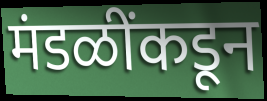
मंडळींकडून